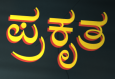
ಪ್ರಕೃತ